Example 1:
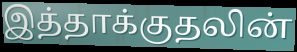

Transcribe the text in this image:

இத்தாக்குதலின்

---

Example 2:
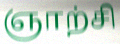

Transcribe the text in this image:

ஞாற்சி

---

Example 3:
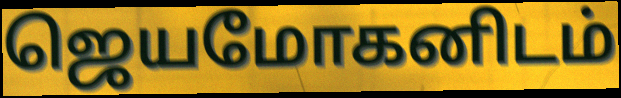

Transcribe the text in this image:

ஜெயமோகனிடம்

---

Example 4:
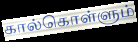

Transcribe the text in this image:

கால்கொள்ளும்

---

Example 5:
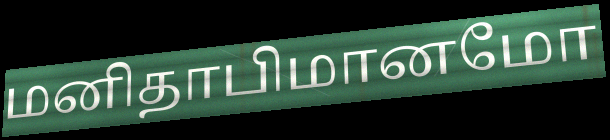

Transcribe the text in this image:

மனிதாபிமானமோ